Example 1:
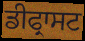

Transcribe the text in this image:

ਡੀਫ੍ਰਾਸਟ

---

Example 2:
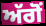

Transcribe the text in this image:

ਅੱਗੋਂ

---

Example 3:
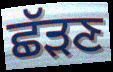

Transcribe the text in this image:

ਛੱੜਣ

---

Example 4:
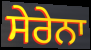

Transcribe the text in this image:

ਸੇਰੇਨਾ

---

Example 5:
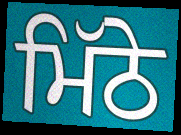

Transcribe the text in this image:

ਮਿੱਠੇ